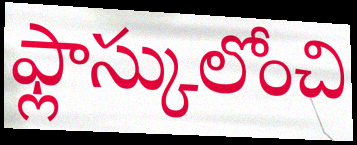
ఫ్లాస్కులోంచి